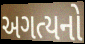
અગત્યનો